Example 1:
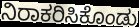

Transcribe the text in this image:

ನಿರಾಕರಿಸಿಕೊಂಡು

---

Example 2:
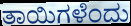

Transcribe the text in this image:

ತಾಯಿಗಳೆಂದು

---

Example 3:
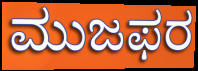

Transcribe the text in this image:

ಮುಜಫರ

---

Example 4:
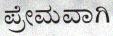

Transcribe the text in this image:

ಪ್ರೇಮವಾಗಿ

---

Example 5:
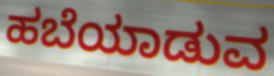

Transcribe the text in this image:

ಹಬೆಯಾಡುವ